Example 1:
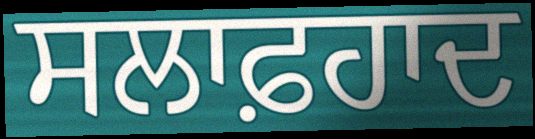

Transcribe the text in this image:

ਸਲਾਫ਼ਹਾਦ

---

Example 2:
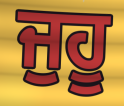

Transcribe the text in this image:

ਜੁਹੂ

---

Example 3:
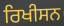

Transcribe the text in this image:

ਰਿਖੀਸਨ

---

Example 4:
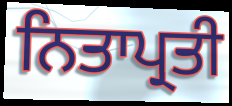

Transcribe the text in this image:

ਨਿਤਾਪ੍ਰਤੀ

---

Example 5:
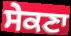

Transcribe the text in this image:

ਸੇਕਣਾ